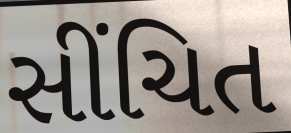
સીંચિત